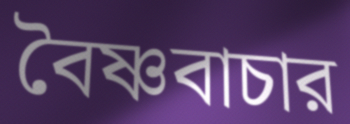
বৈষ্ণবাচার